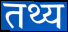
तथ्य